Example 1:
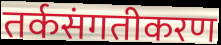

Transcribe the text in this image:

तर्कसंगतीकरण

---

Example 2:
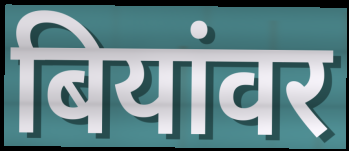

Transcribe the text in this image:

बियांवर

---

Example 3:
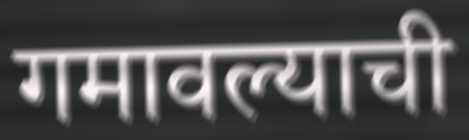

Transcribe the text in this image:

गमावल्याची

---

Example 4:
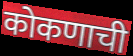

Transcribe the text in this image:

कोकणाची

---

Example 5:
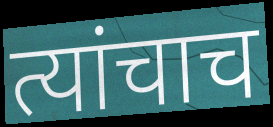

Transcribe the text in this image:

त्यांचाच